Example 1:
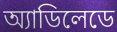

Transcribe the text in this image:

অ্যাডিলেডে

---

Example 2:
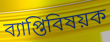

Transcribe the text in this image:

ব্যাপ্তিবিষয়ক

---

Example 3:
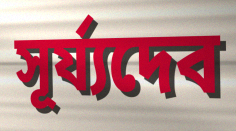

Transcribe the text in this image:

সূর্য্যদেব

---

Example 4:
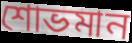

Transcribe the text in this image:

শোভমান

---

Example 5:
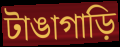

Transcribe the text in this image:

টাঙাগাড়ি